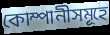
কোম্পানীসমূহে